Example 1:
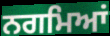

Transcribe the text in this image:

ਨਗਮਿਆਂ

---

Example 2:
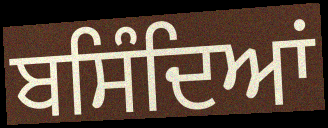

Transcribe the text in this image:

ਬਸਿੰਦਿਆਂ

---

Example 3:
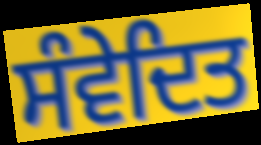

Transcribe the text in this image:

ਸੰਵੇਦਿਤ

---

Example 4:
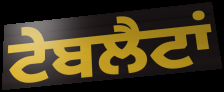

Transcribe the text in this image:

ਟੇਬਲੈਟਾਂ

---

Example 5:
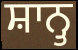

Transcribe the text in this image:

ਸ਼ਾਨ੍ਤ